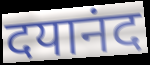
दयानंद